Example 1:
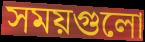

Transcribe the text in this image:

সময়গুলো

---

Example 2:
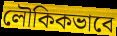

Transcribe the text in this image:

লৌকিকভাবে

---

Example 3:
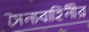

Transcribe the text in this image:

সৈন্যবাহিনীর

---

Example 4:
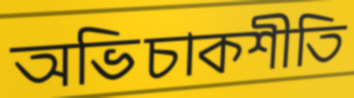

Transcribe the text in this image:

অভিচাকশীতি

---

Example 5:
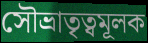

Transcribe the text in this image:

সৌভ্রাতৃত্বমূলক